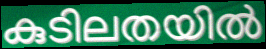
കുടിലതയിൽ